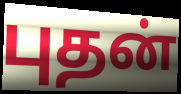
புதன்